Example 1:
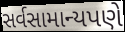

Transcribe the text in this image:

સર્વસામાન્યપણે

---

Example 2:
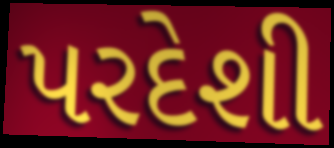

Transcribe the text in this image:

પરદેશી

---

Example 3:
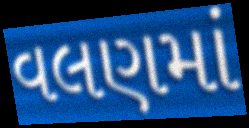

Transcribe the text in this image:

વલણમાં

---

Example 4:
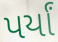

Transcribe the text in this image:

પર્યાં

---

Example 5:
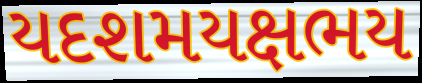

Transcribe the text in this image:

યદશમયક્ષભય